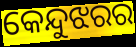
କେନ୍ଦୁଝରର